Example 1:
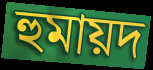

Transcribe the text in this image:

হুমায়দ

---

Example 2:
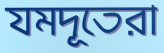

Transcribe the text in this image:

যমদূতেরা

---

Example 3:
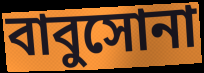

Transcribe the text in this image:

বাবুসোনা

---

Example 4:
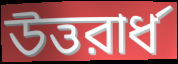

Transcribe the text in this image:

উত্তরার্ধ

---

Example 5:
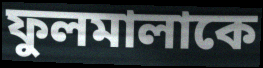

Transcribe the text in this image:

ফুলমালাকে